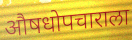
औषधोपचाराला